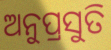
ଅନୁପ୍ରସୁତି